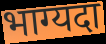
भाग्यदा